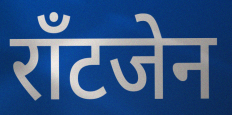
राँटजेन